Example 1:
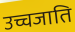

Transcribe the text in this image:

उच्चजाति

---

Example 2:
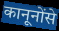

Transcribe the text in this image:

कानूनोंसे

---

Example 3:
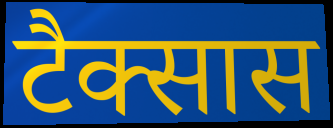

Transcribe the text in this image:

टैक्सास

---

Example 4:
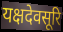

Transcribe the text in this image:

यक्षदेवसूरि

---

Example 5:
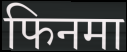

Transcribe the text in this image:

फिनमा